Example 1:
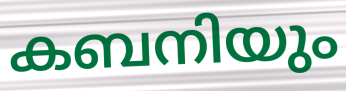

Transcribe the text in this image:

കബനിയും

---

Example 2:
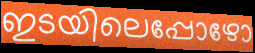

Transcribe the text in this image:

ഇടയിലെപ്പോഴോ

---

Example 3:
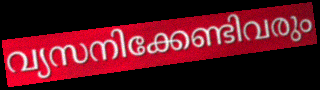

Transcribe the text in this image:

വ്യസനിക്കേണ്ടിവരും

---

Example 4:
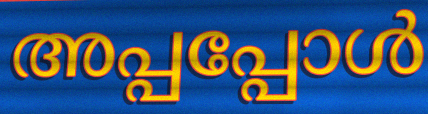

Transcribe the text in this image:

അപ്പപ്പോൾ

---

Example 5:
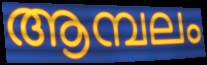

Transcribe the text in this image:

ആമ്പലം